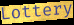
Lottery